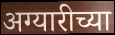
अग्यारीच्या